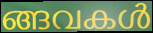
ങ്ങവകൾ